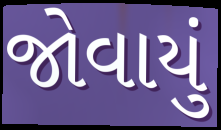
જોવાયું